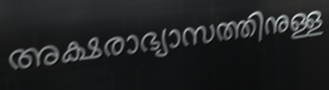
അക്ഷരാഭ്യാസത്തിനുള്ള